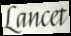
Lancet